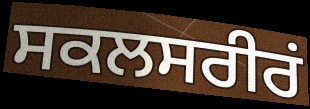
ਸਕਲਸਰੀਰਂ